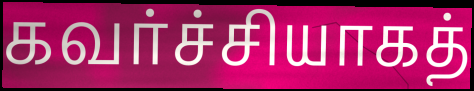
கவர்ச்சியாகத்